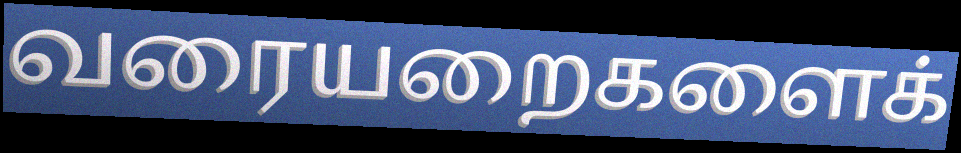
வரையறைகளைக்